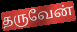
தருவேன்